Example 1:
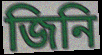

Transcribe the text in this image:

জিনি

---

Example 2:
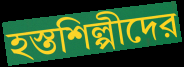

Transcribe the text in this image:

হস্তশিল্পীদের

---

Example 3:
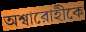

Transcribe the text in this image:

অশ্বারোহীকে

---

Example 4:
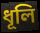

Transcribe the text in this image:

ধূলি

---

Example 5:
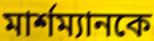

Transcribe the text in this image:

মার্শম্যানকে